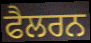
ਫੈਲਰਨ